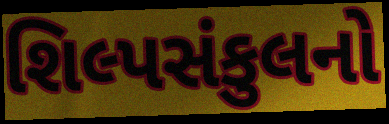
શિલ્પસંકુલનો